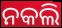
ନକଲି